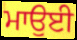
ਮਾਉਈ